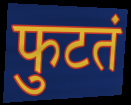
फुटतं